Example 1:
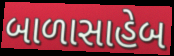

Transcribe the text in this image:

બાળાસાહેબ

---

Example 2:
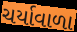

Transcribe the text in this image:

ચર્યાવાળા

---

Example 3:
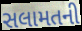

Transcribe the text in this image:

સલામતની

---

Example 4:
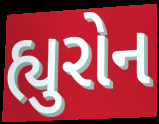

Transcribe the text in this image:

હ્યુરોન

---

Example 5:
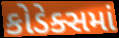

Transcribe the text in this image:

કોડેક્સમાં